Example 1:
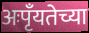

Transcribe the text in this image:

अःपृँयतेच्या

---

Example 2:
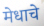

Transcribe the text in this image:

मेधाचे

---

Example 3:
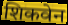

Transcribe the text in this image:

शिकवेन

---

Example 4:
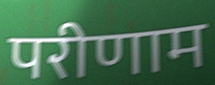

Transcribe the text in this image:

परीणाम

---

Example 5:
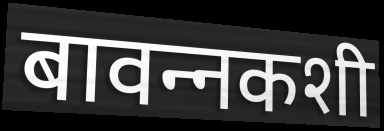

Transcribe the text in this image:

बावन्नकशी